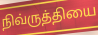
நிவ்ருத்தியை